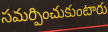
సమర్పించుకుంటారు